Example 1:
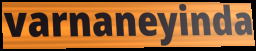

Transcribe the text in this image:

varnaneyinda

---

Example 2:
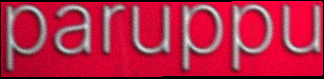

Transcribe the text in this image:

paruppu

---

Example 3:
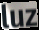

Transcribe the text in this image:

luz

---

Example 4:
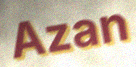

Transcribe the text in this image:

Azan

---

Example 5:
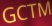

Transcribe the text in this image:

GCTM